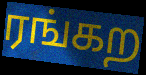
ரங்கற